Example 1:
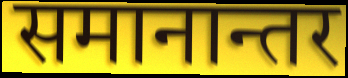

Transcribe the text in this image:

समानान्तर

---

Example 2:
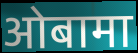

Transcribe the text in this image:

ओबामा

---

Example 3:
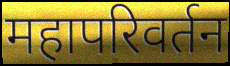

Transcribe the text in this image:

महापरिवर्तन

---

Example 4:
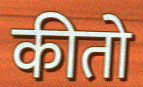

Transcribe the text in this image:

कीतो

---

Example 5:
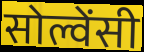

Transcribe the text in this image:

सोल्वेंसी